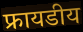
फ्रायडीय